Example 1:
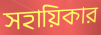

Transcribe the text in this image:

সহায়িকার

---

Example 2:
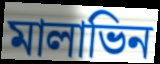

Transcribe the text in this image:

মালাভিন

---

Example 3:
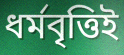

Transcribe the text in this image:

ধর্মবৃত্তিই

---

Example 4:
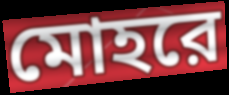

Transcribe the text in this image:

মোহরে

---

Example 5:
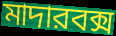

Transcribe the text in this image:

মাদারবক্স